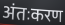
अंतःकरण